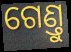
ଗେଣ୍ତୁ